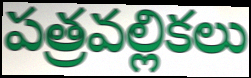
పత్రవల్లికలు